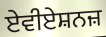
ਏਵੀਏਸ਼ਨਜ਼